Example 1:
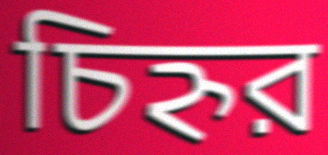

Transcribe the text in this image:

চিহ্নর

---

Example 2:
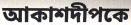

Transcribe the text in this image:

আকাশদীপকে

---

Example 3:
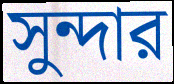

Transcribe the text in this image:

সুন্দার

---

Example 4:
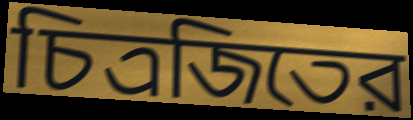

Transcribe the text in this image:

চিত্রজিতের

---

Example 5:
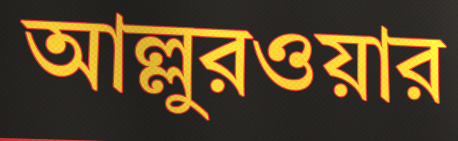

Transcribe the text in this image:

আল্লুরওয়ার